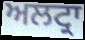
ਅਲਟ੍ਰਾ